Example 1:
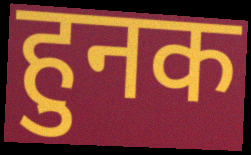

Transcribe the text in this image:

हुनक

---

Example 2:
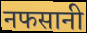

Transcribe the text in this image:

नफसानी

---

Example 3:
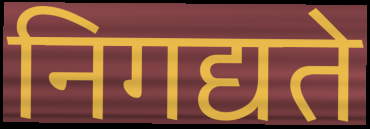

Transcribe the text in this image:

निगद्यते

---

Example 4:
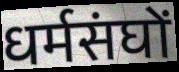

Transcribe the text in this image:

धर्मसंघों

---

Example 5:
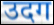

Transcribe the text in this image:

उदग